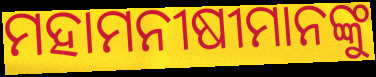
ମହାମନୀଷୀମାନଙ୍କୁ